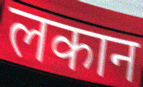
लकान